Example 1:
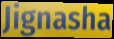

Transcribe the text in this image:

Jignasha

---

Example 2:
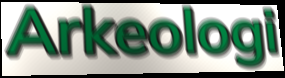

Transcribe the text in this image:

Arkeologi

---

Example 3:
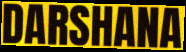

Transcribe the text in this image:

DARSHANA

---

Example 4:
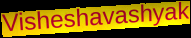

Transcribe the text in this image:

Visheshavashyak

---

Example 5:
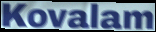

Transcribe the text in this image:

Kovalam